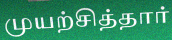
முயற்சித்தார்